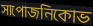
সাপোজনিকোভ